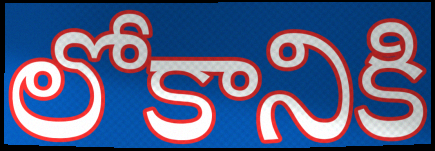
లోకానికి